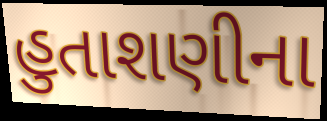
હુતાશણીના